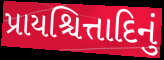
પ્રાયશ્ચિત્તાદિનું